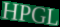
HPGL